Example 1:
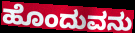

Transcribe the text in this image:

ಹೊಂದುವನು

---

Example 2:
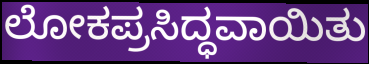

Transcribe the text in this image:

ಲೋಕಪ್ರಸಿದ್ಧವಾಯಿತು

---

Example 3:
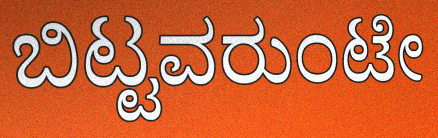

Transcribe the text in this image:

ಬಿಟ್ಟವರುಂಟೇ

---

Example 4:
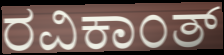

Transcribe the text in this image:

ರವಿಕಾಂತ್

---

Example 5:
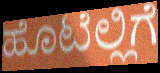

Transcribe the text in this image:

ಹೊಟೆಲ್ಲಿಗೆ